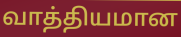
வாத்தியமான